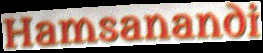
Hamsanandi